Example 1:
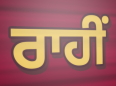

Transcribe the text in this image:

ਰਾਹੀਂ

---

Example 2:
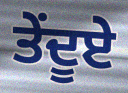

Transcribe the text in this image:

ਤੇਂਦੂਏ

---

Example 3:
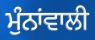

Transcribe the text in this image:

ਮੁੰਨਾਂਵਾਲੀ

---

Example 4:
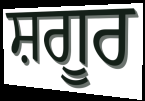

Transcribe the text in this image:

ਸ਼ਗੂਰ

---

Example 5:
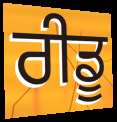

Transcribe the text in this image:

ਰੀਡੂ